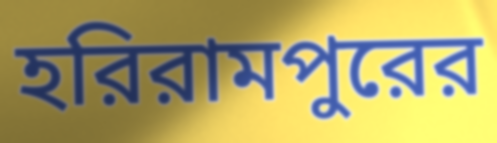
হরিরামপুরের